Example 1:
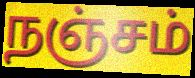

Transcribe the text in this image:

நஞ்சம்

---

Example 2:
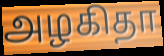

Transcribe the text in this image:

அழகிதா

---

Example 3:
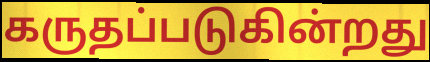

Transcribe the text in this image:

கருதப்படுகின்றது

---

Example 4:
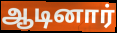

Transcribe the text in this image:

ஆடினார்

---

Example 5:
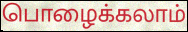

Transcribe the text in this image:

பொழைக்கலாம்